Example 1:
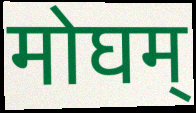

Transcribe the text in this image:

मोघम्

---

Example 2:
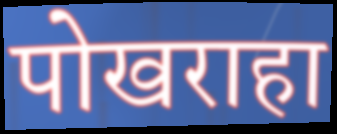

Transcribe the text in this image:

पोखराहा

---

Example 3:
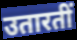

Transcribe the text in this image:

उतारतीं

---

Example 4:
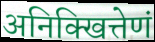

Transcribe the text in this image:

अनिक्खित्तेणं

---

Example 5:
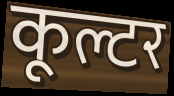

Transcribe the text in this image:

कूल्‍टर